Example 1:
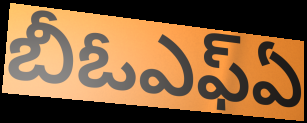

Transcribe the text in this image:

బీఓఎఫ్ఏ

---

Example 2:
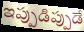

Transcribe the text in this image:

ఇప్పుడిప్పుడే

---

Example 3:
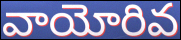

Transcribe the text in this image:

వాయోరివ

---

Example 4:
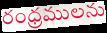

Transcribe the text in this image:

రంధ్రములను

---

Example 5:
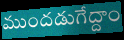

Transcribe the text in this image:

ముందడుగేద్దాం